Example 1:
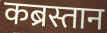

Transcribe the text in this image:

कब्रस्तान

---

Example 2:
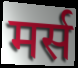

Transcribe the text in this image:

मर्स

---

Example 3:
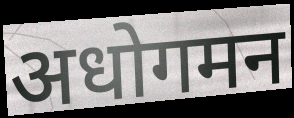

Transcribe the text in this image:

अधोगमन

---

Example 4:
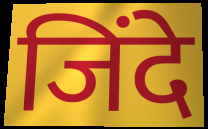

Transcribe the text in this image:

जिंदे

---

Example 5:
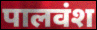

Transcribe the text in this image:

पालवंश